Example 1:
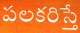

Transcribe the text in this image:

పలకరిస్తే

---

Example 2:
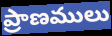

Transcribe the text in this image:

ప్రాణములు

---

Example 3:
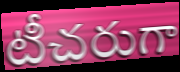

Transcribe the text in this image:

టీచరుగా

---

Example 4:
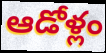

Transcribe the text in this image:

ఆడోళ్లం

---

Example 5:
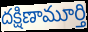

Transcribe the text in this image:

దక్షిణామూర్తి